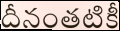
దీనంతటికీ